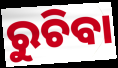
ରୁଚିବା